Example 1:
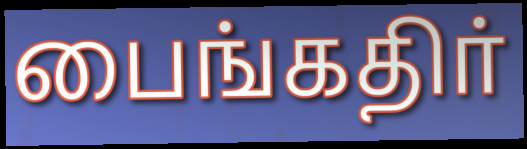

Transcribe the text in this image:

பைங்கதிர்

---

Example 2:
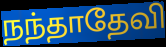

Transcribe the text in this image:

நந்தாதேவி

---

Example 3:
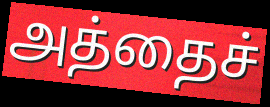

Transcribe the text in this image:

அத்தைச்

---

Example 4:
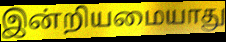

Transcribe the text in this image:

இன்றியமையாது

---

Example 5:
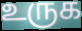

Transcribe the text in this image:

உருக